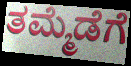
ತಮ್ಮೆಡೆಗೆ